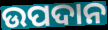
ଉପଦାନ